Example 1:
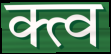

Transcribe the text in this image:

क्त्व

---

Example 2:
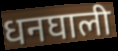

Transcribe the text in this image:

धनघाली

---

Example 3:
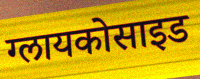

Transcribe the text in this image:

ग्लायकोसाइड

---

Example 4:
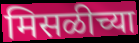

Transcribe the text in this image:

मिसळीच्या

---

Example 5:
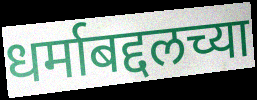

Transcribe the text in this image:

धर्माबद्दलच्या